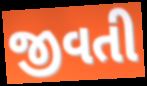
જીવતી